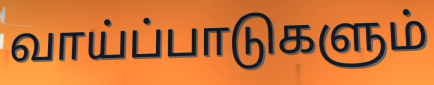
வாய்ப்பாடுகளும்